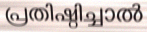
പ്രതിഷ്ഠിച്ചാൽ